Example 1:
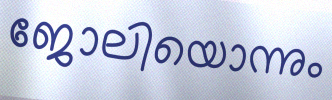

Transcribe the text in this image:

ജോലിയൊന്നും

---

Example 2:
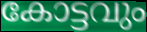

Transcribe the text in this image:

കോട്ടവും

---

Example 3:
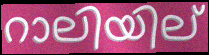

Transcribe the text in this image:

റാലിയില്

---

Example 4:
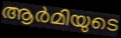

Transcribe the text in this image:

ആർമിയുടെ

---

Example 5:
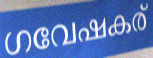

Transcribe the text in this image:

ഗവേഷകര്